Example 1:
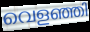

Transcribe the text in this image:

വെളഞ്ഞി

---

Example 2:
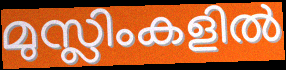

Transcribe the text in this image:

മുസ്ലിംകളിൽ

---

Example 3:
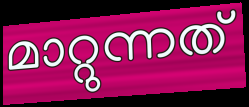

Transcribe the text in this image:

മാറ്റുന്നത്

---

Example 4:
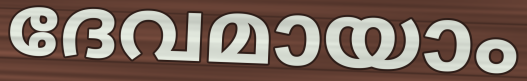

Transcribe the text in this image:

ദേവമായാം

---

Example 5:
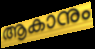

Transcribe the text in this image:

ആകാനും